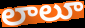
లాలూ